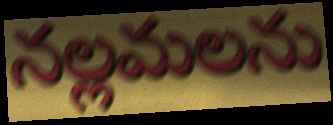
నల్లమలను